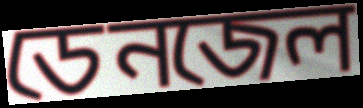
ডেনজেল